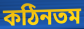
কঠিনতম